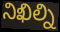
నిఖిల్ని